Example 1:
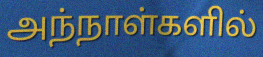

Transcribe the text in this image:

அந்நாள்களில்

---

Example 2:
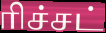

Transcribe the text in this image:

ரிச்சட்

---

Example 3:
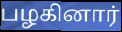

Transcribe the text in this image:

பழகினார்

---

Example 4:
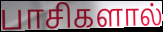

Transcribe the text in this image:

பாசிகளால்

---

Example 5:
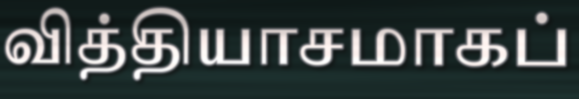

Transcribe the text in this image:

வித்தியாசமாகப்